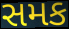
સમક